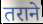
तराने